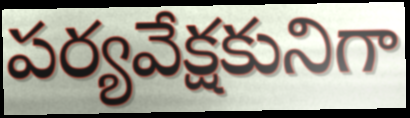
పర్యవేక్షకునిగా